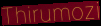
Thirumozi